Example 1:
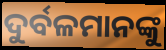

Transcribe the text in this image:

ଦୁର୍ବଳମାନଙ୍କୁ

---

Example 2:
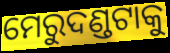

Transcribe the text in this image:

ମେରୁଦଣ୍ଡଟାକୁ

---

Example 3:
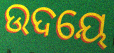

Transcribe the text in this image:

ଉଦୟେ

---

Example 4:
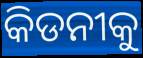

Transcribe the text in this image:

କିଡନୀକୁ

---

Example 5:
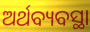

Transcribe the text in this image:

ଅର୍ଥବ୍ୟବସ୍ଥା